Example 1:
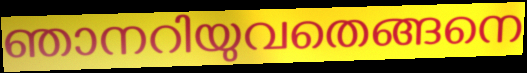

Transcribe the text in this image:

ഞാനറിയുവതെങ്ങനെ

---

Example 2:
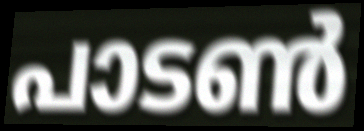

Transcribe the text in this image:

പാടൺ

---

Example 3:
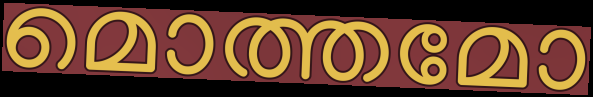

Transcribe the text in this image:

മൊത്തമോ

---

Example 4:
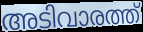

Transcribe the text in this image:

അടിവാരത്ത്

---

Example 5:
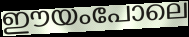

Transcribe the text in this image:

ഈയംപോലെ